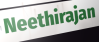
Neethirajan